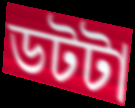
ডটটা